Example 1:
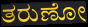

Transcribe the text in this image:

ತರುಣೋ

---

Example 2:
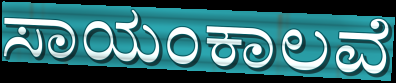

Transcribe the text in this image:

ಸಾಯಂಕಾಲವೆ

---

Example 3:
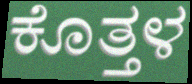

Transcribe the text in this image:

ಕೊತ್ತಳ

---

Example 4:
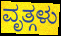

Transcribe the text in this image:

ವೃತ್ಗಳು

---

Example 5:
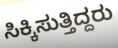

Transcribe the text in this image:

ಸಿಕ್ಕಿಸುತ್ತಿದ್ದರು